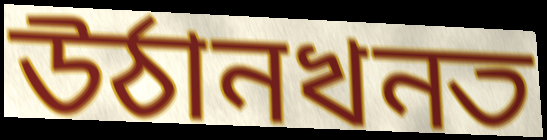
উঠানখনত